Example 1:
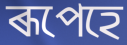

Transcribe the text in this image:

ৰূপেহে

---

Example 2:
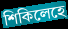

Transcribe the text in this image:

শিকিলেহে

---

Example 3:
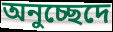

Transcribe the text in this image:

অনুচ্ছেদে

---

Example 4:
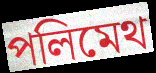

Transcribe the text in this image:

পলিমেথ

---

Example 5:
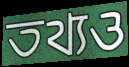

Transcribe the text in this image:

তথ্যও